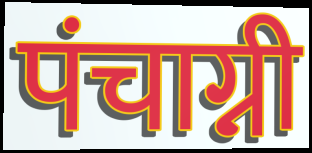
पंचाग्नी